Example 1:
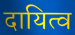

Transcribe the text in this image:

दायित्व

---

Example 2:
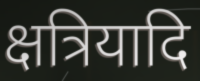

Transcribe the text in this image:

क्षत्रियादि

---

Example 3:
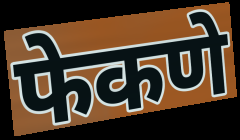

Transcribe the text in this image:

फेकणे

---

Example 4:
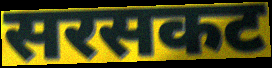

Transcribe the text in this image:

सरसकट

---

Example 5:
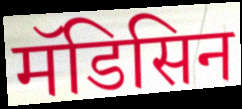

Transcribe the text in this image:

मॅडिसिन